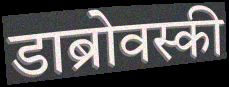
डाब्रोवस्की